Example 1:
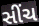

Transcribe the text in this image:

સીંચ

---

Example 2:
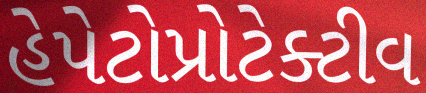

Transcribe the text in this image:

હેપેટોપ્રોટેક્ટીવ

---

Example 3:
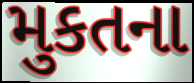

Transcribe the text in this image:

મુકતના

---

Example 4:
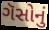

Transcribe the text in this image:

ગૅસોનું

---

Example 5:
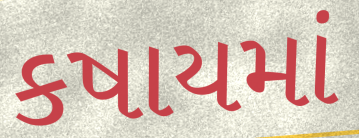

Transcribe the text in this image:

કષાયમાં